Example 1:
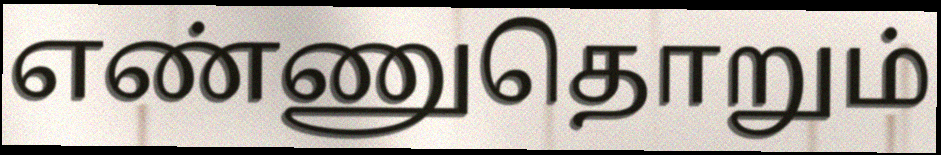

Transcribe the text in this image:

எண்ணுதொறும்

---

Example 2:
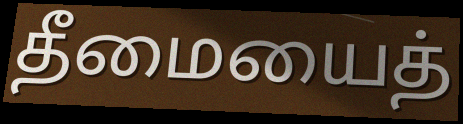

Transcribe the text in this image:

தீமையைத்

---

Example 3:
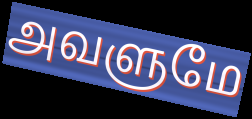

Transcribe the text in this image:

அவளுமே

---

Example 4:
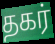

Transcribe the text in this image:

தகர்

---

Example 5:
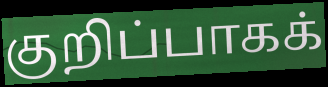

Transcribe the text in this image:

குறிப்பாகக்